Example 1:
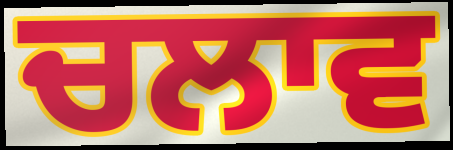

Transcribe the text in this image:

ਚਲਾਵ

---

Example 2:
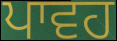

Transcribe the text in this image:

ਪਾਵਹ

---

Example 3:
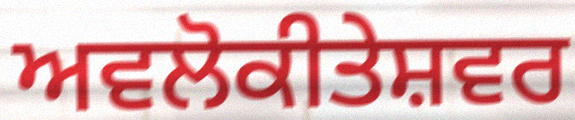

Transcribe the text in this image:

ਅਵਲੋਕੀਤੇਸ਼ਵਰ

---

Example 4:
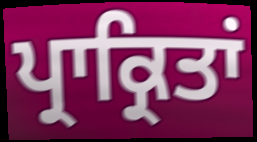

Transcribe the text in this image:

ਪ੍ਰਾਕ੍ਰਿਤਾਂ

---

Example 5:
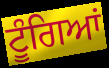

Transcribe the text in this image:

ਟੂੰਗਿਆਂ